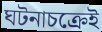
ঘটনাচক্রেই